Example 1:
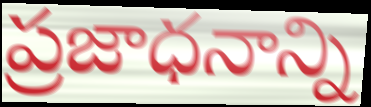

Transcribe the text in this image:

ప్రజాధనాన్ని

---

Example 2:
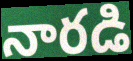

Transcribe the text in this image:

నారడి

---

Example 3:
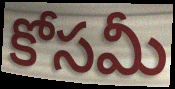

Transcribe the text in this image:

కోసమీ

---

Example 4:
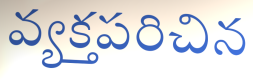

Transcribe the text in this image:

వ్యక్తపరిచిన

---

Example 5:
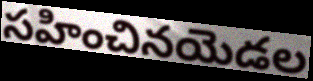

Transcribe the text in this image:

సహించినయెడల